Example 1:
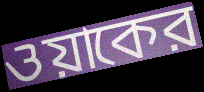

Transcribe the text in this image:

ওয়াকের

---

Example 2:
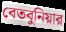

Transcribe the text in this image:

বেতবুনিয়ার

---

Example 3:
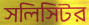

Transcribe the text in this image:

সলিসিটর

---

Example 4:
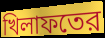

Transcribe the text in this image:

খিলাফতের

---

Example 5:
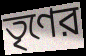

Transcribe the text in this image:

তৃণের